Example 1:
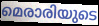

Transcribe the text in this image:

മെരാരിയുടെ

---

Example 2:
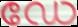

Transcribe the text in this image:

ഡേ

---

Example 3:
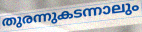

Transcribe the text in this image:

തുരന്നുകടന്നാലും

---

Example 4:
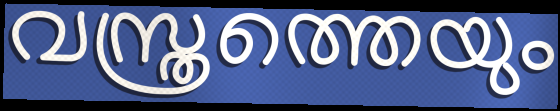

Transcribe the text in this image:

വസ്ത്രത്തെയും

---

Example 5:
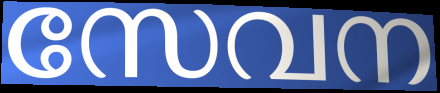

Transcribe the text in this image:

സേവന